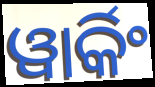
ୱାର୍କିଂ